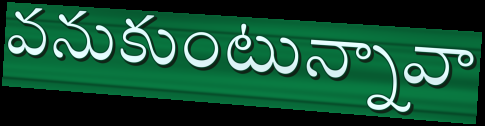
వనుకుంటున్నావా